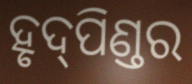
ହୃଦ୍‌ପିଣ୍ଡର